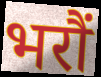
भरौं